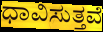
ಧಾವಿಸುತ್ತವೆ